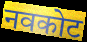
नवकोट